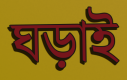
ঘড়াই